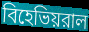
বিহেভিয়রাল